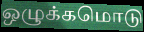
ஒழுக்கமொடு